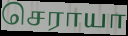
செராயா